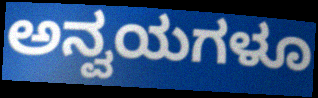
ಅನ್ವಯಗಳೂ